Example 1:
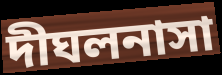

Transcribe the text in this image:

দীঘলনাসা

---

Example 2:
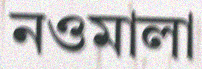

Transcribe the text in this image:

নওমালা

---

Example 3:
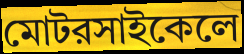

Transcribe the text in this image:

মোটরসাইকেলে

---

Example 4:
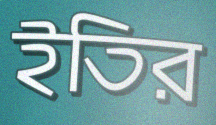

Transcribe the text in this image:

ইতির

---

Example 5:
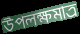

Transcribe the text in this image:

উপলক্ষমাত্র